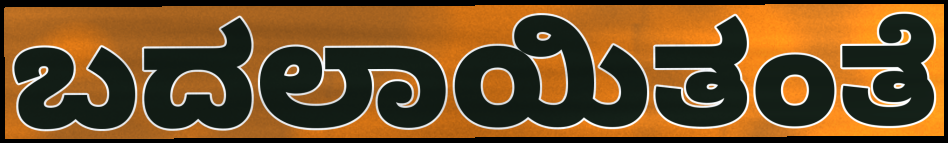
ಬದಲಾಯಿತಂತೆ